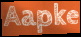
Aapke